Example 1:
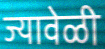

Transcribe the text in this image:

ज्यावेळी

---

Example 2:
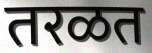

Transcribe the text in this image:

तरळत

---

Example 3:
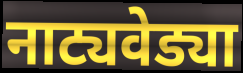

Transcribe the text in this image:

नाट्यवेड्या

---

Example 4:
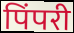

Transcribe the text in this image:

पिंपरी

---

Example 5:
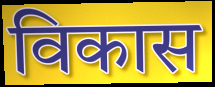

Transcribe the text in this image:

विकास